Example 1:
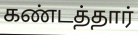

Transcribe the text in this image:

கண்டத்தார்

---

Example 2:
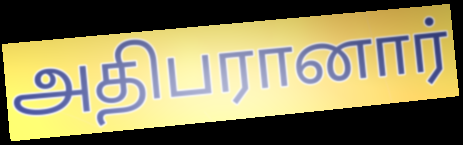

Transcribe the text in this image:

அதிபரானார்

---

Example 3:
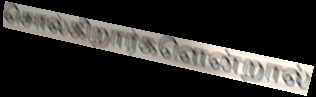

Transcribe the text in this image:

சொல்கிறார்களென்றால்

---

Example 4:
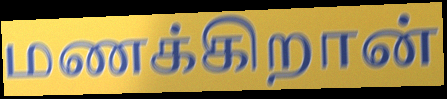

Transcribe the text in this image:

மணக்கிறான்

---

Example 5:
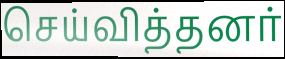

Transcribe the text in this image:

செய்வித்தனர்